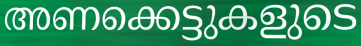
അണക്കെട്ടുകളുടെ